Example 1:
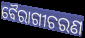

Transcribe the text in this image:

ବୈରାଗୀଚରଣ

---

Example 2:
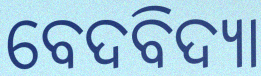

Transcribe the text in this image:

ବେଦବିଦ୍ୟା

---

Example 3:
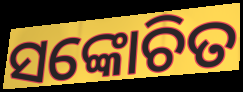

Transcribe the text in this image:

ସଙ୍କୋଚିତ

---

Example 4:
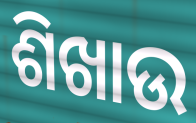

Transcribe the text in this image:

ଶିଖାଉ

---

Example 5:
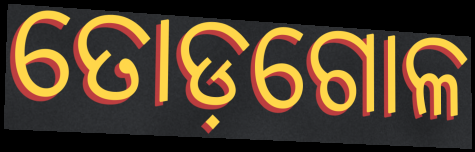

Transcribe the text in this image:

ତୋଡ଼ଗୋଳ